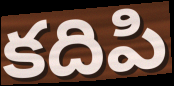
కదిపి